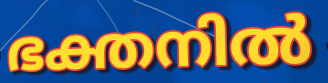
ഭക്തനിൽ